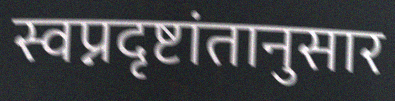
स्वप्नदृष्टांतानुसार